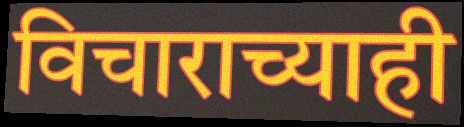
विचाराच्याही